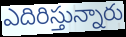
ఎదిరిస్తున్నారు